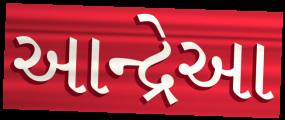
આન્દ્રેઆ